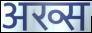
अख्स